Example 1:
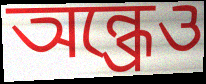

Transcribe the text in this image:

অন্ধ্রেও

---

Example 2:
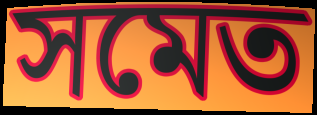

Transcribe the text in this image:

সমেত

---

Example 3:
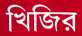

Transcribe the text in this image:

খিজির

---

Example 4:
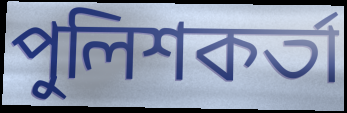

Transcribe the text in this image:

পুলিশকর্তা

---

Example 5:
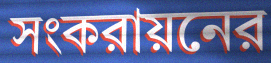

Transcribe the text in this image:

সংকরায়নের